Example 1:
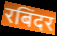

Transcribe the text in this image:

रबिंदर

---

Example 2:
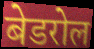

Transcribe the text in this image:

बेडरोल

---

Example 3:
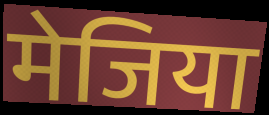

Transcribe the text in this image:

मेजिया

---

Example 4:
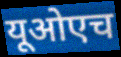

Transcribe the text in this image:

यूओएच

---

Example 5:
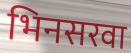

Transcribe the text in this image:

भिनसरवा